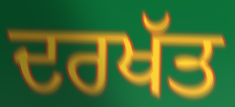
ਦਰਖੱਤ